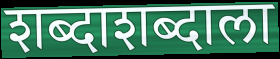
शब्दाशब्दाला